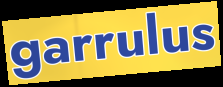
garrulus